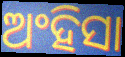
ଅଂହିସା